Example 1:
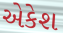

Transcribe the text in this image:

એકેશ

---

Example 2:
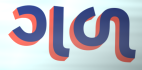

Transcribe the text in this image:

ગળ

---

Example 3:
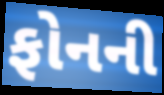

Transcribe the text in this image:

ફોનની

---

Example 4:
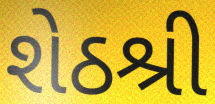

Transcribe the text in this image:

શેઠશ્રી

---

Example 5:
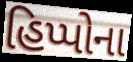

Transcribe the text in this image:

હિપ્પોના